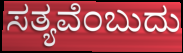
ಸತ್ಯವೆಂಬುದು